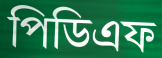
পিডিএফ